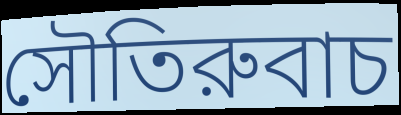
সৌতিরুবাচ